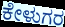
ಕೇಳುಗರ